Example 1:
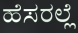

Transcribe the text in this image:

ಹೆಸರಲ್ಲೆ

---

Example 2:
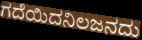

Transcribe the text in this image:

ಗದೆಯಿದನಿಲಜನದು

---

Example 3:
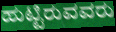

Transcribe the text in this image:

ಹುಟ್ಟಿರುವವರು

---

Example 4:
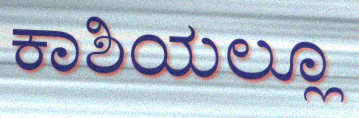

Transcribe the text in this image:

ಕಾಶಿಯಲ್ಲೂ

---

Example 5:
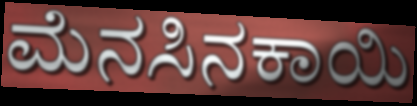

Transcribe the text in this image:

ಮೆನಸಿನಕಾಯಿ